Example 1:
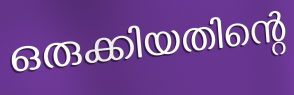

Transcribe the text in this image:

ഒരുക്കിയതിന്റെ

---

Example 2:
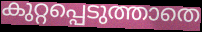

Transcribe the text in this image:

കുറ്റപ്പെടുത്താതെ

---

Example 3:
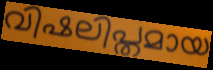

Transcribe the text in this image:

വിഷലിപ്തമായ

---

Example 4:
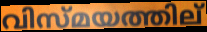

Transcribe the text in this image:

വിസ്മയത്തില്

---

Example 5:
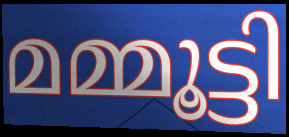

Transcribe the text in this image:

മമ്മൂട്ടി